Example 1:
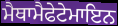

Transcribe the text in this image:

ਮੈਥਾਮੈਫੇਟੇਮਾਇਨ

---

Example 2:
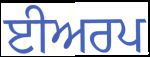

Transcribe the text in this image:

ਈਅਰਪ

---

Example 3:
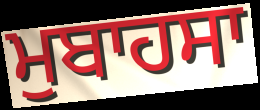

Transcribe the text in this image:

ਮੁਬਾਹਸਾ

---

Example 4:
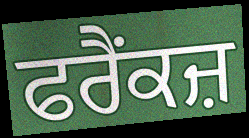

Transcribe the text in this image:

ਫਰੈਂਕਜ਼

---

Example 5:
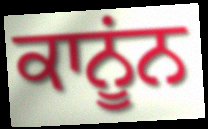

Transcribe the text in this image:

ਕਾਨੂਂਨ